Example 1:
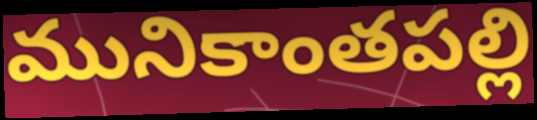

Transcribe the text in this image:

మునికాంతపల్లి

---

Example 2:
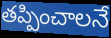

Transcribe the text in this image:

తప్పించాలనే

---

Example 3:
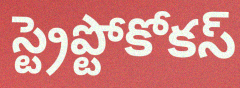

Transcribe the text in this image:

స్ట్రెప్టోకోకస్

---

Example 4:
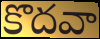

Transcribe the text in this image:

కొదవా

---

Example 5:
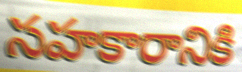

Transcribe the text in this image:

సహకారానికి